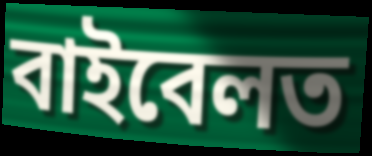
বাইবেলত